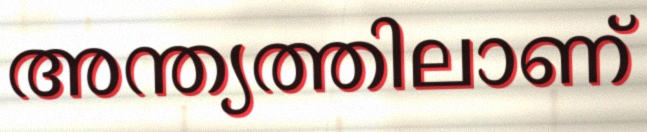
അന്ത്യത്തിലാണ്